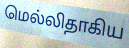
மெல்லிதாகிய